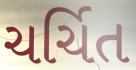
ચર્ચિત